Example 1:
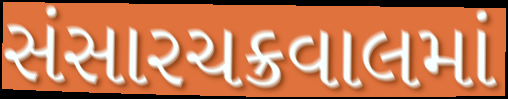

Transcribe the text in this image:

સંસારચક્રવાલમાં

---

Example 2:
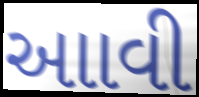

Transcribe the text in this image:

આાવી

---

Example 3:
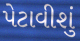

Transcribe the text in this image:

પેટાવીશું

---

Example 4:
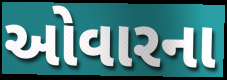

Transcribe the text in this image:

ઓવારના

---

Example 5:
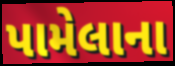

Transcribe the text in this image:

પામેલાના